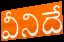
వీనిదే